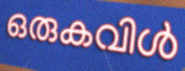
ഒരുകവിൾ